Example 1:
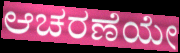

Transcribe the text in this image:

ಆಚರಣೆಯೇ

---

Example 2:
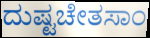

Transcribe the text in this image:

ದುಷ್ಟಚೇತಸಾಂ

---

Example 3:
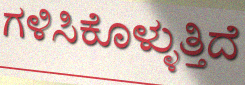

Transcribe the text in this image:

ಗಳಿಸಿಕೊಳ್ಳುತ್ತಿದೆ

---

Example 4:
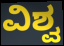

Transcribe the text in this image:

ವಿಶ್ವ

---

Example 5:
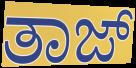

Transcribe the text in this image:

ತಾಜ್